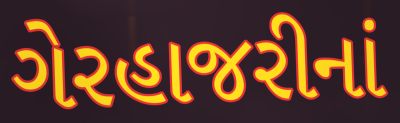
ગેરહાજરીનાં